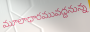
మూలాధారమువద్దనున్న